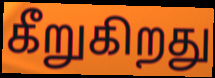
கீறுகிறது